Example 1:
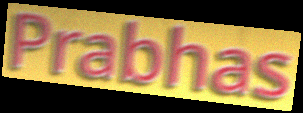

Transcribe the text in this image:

Prabhas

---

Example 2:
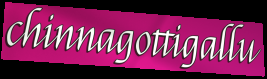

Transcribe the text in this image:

chinnagottigallu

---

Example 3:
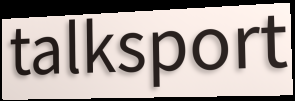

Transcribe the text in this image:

talksport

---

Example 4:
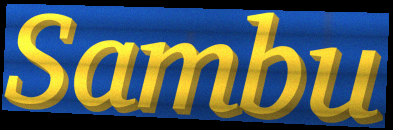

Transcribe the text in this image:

Sambu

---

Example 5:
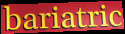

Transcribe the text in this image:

bariatric